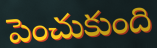
పెంచుకుంది